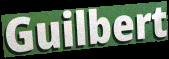
Guilbert